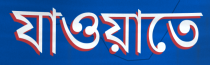
যাওয়াতে